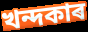
খন্দকাৰ